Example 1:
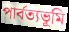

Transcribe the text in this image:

পার্বত্যভূমি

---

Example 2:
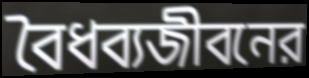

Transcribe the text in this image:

বৈধব্যজীবনের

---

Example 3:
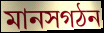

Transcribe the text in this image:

মানসগঠন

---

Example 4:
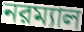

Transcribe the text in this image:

নরম্যাল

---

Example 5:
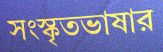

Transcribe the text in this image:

সংস্কৃতভাষার